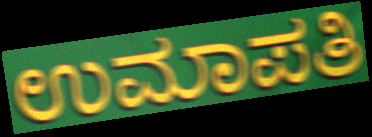
ಉಮಾಪತಿ